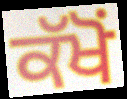
ਕੱਖੋਂ